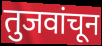
तुजवांचून